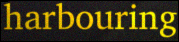
harbouring